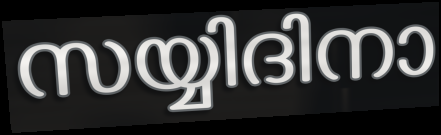
സയ്യിദിനാ